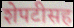
शेपटीसह